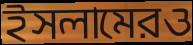
ইসলামেরও